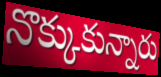
నొక్కుకున్నారు